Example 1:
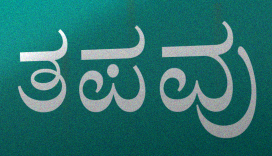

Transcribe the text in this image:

ತಪವು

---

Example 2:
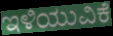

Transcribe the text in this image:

ಇಳಿಯುವಿಕೆ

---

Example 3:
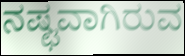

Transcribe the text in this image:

ನಷ್ಟವಾಗಿರುವ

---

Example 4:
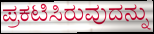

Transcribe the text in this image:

ಪ್ರಕಟಿಸಿರುವುದನ್ನು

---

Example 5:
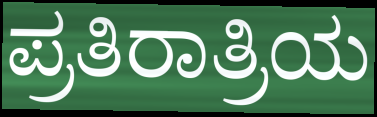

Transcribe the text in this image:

ಪ್ರತಿರಾತ್ರಿಯ